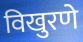
विखुरणे